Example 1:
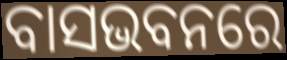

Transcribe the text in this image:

ବାସଭବନରେ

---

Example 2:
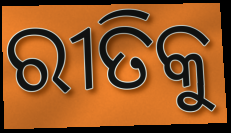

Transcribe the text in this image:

ରୀତିକୁ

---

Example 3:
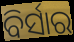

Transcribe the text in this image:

ବିର୍ସାର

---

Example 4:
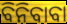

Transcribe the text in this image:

ବିନିବାବା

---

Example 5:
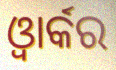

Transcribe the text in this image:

ଓ୍ବାର୍କର